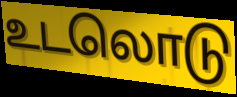
உடலொடு